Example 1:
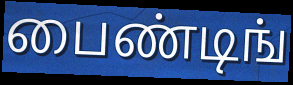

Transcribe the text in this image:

பைண்டிங்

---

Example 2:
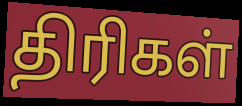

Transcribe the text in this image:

திரிகள்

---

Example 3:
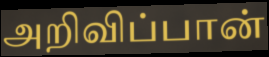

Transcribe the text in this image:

அறிவிப்பான்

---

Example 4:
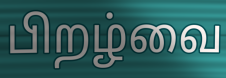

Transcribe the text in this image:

பிறழ்வை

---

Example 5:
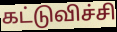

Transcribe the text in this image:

கட்டுவிச்சி